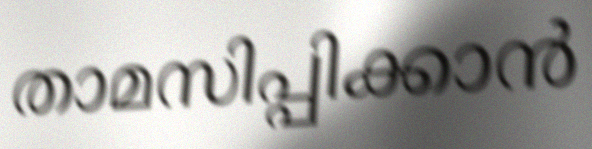
താമസിപ്പിക്കാൻ